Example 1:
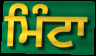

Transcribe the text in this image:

ਮਿੰਟਾ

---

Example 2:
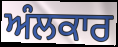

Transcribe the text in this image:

ਅੰਲਕਾਰ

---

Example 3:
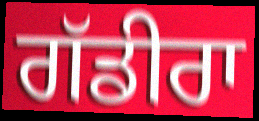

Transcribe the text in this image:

ਗੱਡੀਰਾ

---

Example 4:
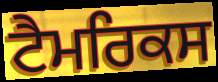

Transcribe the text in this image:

ਟੈਮਰਿਕਸ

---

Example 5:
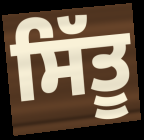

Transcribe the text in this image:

ਸਿੱਤੂ